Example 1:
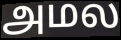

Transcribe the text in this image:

அமல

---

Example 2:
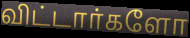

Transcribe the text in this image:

விட்டார்களோ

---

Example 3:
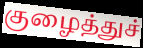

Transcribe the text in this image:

குழைத்துச்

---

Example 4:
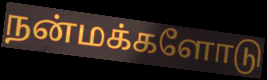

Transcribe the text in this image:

நன்மக்களோடு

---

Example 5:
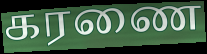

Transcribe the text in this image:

கரணை